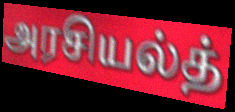
அரசியல்த்